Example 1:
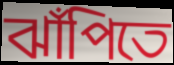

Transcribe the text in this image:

ঝাঁপিতে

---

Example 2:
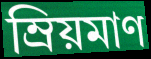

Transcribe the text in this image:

ম্রিয়মাণ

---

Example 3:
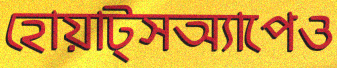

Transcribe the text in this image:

হোয়াট্‌সঅ্যাপেও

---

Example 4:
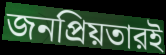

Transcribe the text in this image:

জনপ্রিয়তারই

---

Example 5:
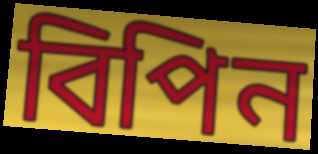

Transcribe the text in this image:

বিপিন